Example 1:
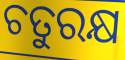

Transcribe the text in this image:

ଚତୁରକ୍ଷ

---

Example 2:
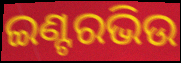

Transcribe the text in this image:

ଇଣ୍ଟରଭିଉ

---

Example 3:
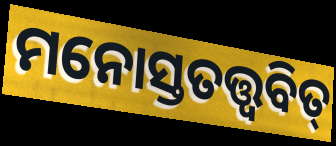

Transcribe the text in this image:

ମନୋସ୍ତତତ୍ତ୍ୱବିତ୍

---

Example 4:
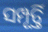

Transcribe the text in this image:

ସମ୍ପୂର୍ତ୍ତି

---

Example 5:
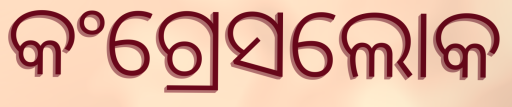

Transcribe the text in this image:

କଂଗ୍ରେସଲୋକ